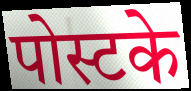
पोस्टके